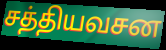
சத்தியவசன